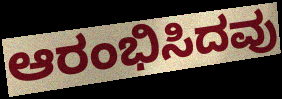
ಆರಂಭಿಸಿದವು